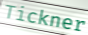
Tickner